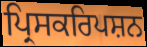
ਪ੍ਰਿਸਕਰਿਪਸ਼ਨ